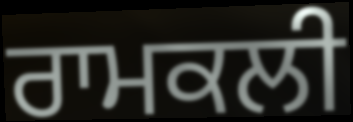
ਰਾਮਕਲੀ